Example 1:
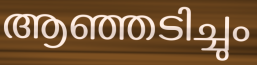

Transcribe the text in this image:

ആഞ്ഞടിച്ചും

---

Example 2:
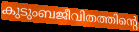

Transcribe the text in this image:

കുടുംബജീവിതത്തിന്റെ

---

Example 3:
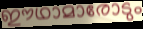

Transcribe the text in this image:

ഈഥാമാരോടും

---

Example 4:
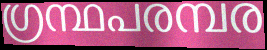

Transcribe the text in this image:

ഗ്രന്ഥപരമ്പര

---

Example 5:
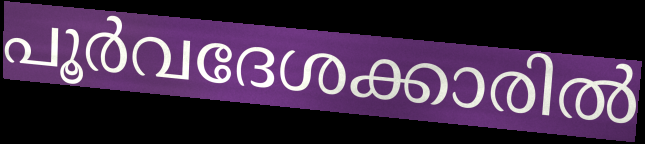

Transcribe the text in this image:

പൂർവദേശക്കാരിൽ